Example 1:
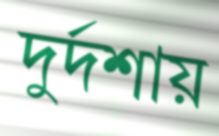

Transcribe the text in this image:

দুর্দশায়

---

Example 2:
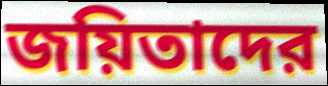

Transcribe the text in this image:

জয়িতাদের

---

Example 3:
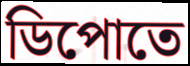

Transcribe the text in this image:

ডিপোতে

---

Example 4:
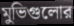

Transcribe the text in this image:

মুভিগুলোর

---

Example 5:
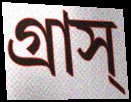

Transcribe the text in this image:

গ্রাস্